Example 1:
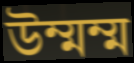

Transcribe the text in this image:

উম্মম্ম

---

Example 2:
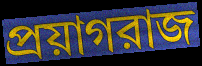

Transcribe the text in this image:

প্রয়াগরাজ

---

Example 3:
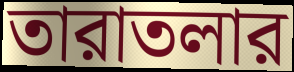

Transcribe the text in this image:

তারাতলার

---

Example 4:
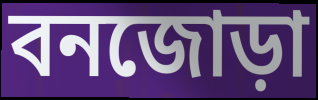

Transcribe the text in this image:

বনজোড়া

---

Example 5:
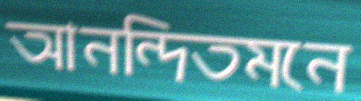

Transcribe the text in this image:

আনন্দিতমনে